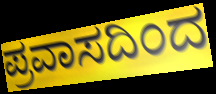
ಪ್ರವಾಸದಿಂದ